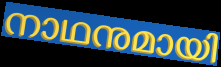
നാഥനുമായി